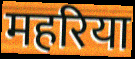
महरिया